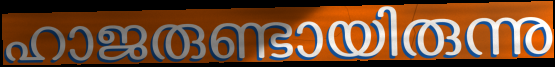
ഹാജരുണ്ടായിരുന്നു